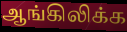
ஆங்கிலிக்க